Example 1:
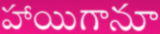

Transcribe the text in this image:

హాయిగానూ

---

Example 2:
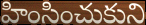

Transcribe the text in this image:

హింసించుకుని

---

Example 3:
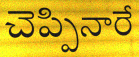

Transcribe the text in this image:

చెప్పినారే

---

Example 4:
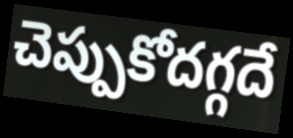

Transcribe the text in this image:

చెప్పుకోదగ్గదే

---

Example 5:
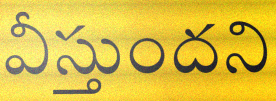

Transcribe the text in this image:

వీస్తుందని